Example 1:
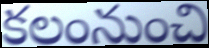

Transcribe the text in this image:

కలంనుంచి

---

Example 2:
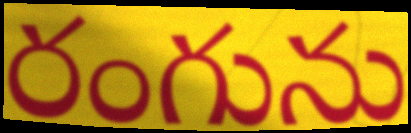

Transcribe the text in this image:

రంగును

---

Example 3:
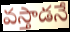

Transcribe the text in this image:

వస్తాడనే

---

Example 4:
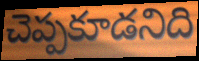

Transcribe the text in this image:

చెప్పకూడనిది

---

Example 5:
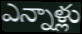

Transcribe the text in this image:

ఎన్నాళ్లు